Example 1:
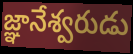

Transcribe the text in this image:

జ్ఞానేశ్వరుడు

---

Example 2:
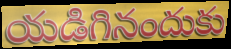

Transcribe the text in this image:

యడిగినందుకు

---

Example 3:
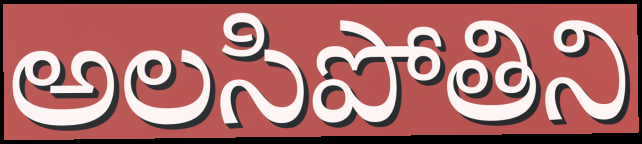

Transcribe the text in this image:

అలసిపోతిని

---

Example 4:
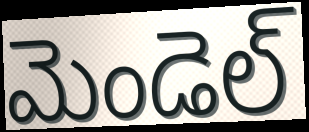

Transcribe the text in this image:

మెండెల్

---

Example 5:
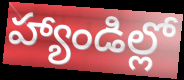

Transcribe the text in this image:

హ్యాండిల్లో